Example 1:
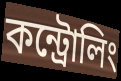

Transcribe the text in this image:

কন্ট্রোলিং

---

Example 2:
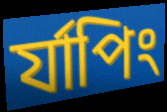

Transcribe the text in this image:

র্যাপিং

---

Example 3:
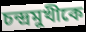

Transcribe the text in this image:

চন্দ্রমুখীকে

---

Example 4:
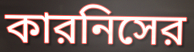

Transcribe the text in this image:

কারনিসের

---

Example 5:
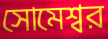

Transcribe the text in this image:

সোমেশ্বর